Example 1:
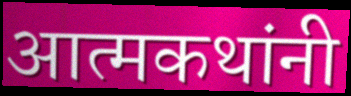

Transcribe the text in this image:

आत्मकथांनी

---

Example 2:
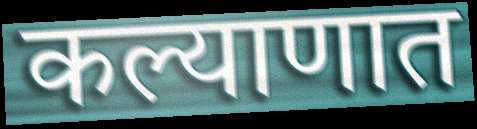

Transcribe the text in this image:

कल्याणात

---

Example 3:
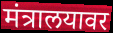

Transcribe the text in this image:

मंत्रालयावर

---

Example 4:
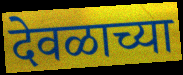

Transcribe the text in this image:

देवळाच्या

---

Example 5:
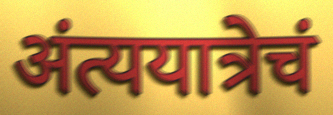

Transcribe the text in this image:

अंत्ययात्रेचं